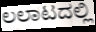
ಲಲಾಟದಲ್ಲಿ